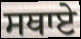
ਸਥਾਏ